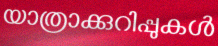
യാത്രാക്കുറിപ്പുകൾ